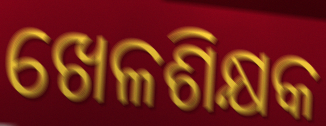
ଖେଳଶିକ୍ଷକ